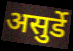
असुर्डे